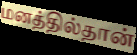
மனத்தில்தான்